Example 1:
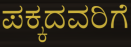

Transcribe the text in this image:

ಪಕ್ಕದವರಿಗೆ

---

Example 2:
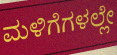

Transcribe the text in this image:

ಮಳಿಗೆಗಳಲ್ಲೇ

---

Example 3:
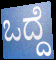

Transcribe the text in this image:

ಒದ್ದೆ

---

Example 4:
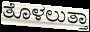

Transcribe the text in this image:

ತೊಳಲುತ್ತಾ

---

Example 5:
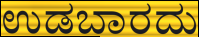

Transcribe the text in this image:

ಉಡಬಾರದು